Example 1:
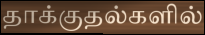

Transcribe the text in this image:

தாக்குதல்களில்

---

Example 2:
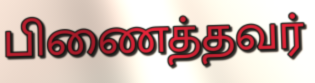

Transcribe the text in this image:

பிணைத்தவர்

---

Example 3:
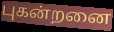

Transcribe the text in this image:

புகன்றனை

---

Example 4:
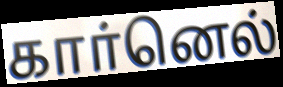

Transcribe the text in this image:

கார்னெல்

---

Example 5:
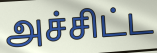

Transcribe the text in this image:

அச்சிட்ட